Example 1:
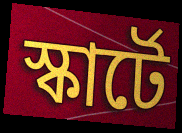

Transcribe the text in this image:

স্কার্টে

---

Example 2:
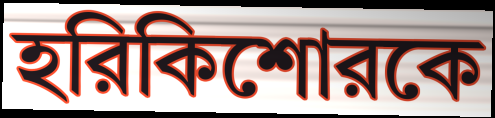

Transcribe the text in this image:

হরিকিশোরকে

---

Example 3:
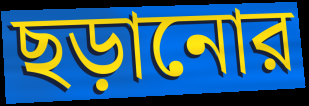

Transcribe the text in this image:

ছড়ানোর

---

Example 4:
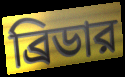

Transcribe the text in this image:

ব্রিডার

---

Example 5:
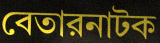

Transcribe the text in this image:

বেতারনাটক